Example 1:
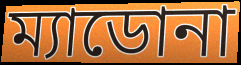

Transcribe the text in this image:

ম্যাডোনা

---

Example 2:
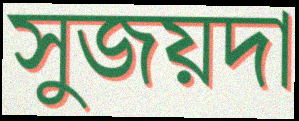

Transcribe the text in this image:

সুজয়দা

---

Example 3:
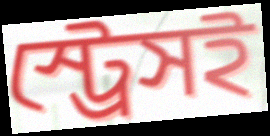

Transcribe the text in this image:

স্ট্রেসই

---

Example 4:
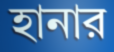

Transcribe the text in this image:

হানার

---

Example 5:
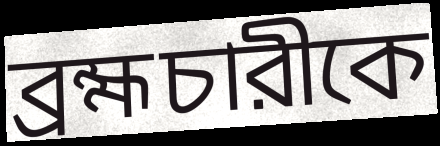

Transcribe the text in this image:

ব্রহ্মচারীকে